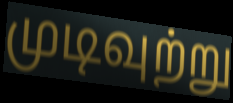
முடிவுற்று